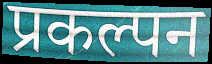
प्रकल्पन